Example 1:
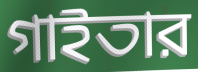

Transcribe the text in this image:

গাইতার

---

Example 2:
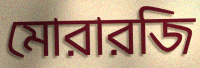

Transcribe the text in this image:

মোরারজি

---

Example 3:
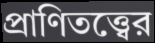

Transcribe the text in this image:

প্রাণিতত্ত্বের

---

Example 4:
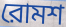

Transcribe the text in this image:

রোমশ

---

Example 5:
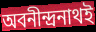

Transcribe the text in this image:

অবনীন্দ্রনাথই